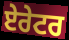
ਏਰੇਟਰ